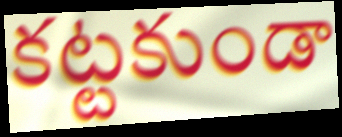
కట్టకుండా